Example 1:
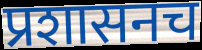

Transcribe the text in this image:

प्रशासनच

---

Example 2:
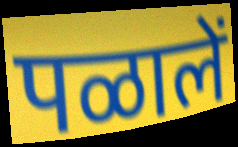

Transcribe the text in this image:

पळालें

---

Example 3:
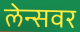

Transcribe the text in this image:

लेन्सवर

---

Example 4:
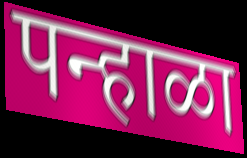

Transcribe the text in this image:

पन्हाळा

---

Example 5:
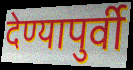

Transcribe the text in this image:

देण्यापुर्वी